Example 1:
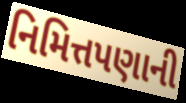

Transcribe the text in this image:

નિમિત્તપણાની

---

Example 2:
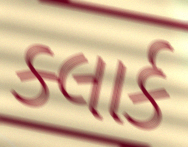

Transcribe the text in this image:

ક્લાર્ક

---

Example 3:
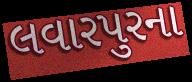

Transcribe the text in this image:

લવારપુરના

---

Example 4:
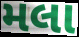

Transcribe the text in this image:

મલા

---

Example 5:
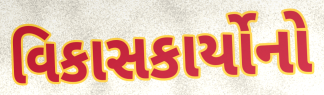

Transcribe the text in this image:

વિકાસકાર્યોનો